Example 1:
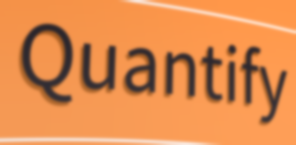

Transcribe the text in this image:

Quantify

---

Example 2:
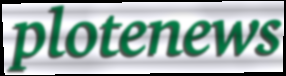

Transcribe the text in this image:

plotenews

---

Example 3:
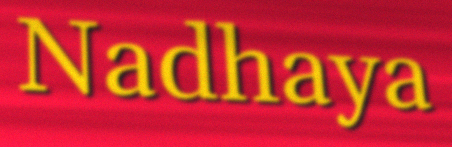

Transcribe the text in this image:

Nadhaya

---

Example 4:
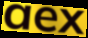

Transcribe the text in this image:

aex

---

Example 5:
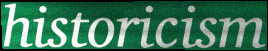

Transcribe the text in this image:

historicism